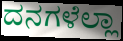
ದನಗಳೆಲ್ಲಾ